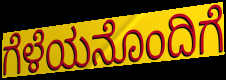
ಗೆಳೆಯನೊಂದಿಗೆ